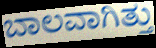
ಬಾಲವಾಗಿತ್ತು